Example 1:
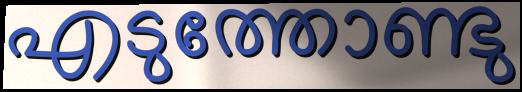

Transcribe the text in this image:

എടുത്തോണ്ടു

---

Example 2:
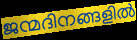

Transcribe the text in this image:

ജന്മദിനങ്ങളിൽ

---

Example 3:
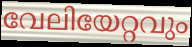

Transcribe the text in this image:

വേലിയേറ്റവും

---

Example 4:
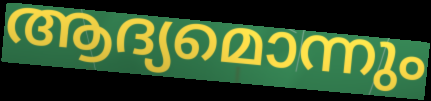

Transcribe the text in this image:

ആദ്യമൊന്നും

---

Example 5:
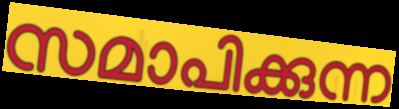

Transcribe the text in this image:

സമാപിക്കുന്ന